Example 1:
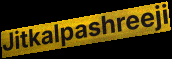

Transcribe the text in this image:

Jitkalpashreeji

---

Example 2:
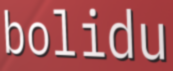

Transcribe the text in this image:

bolidu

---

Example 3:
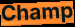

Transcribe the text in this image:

Champ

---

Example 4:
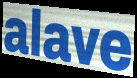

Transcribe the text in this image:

alave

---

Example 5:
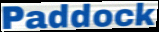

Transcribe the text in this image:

Paddock